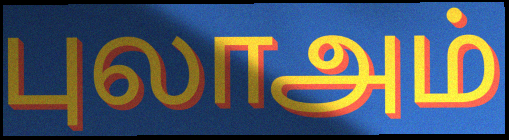
புலாஅம்